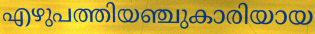
എഴുപത്തിയഞ്ചുകാരിയായ